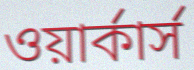
ওয়ার্কার্স